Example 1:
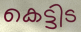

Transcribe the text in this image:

കെട്ടിട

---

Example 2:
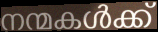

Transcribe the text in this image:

നന്മകൾക്ക്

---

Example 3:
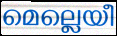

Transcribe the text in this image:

മെല്ലെയീ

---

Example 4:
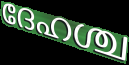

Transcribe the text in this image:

ദേഹശ്ച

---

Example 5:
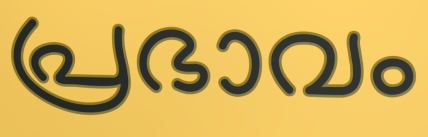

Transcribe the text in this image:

പ്രഭാവം